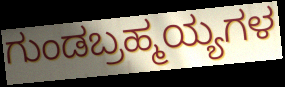
ಗುಂಡಬ್ರಹ್ಮಯ್ಯಗಳ